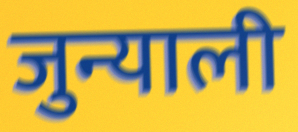
जुन्याली